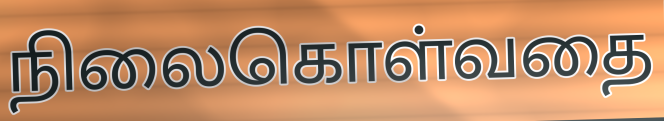
நிலைகொள்வதை